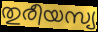
തുരീയസ്യ